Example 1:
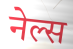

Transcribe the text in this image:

नेल्स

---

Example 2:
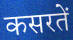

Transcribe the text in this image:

कसरतें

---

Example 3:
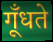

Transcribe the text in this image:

गूँधते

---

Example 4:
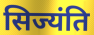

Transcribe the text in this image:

सिज्यंति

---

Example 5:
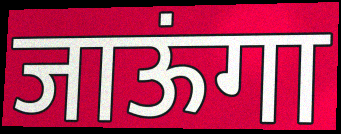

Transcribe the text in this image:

जाऊंगा